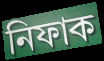
নিফাক